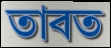
তাবত